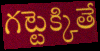
గట్టెక్కితే